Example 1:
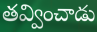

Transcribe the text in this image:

తవ్వించాడు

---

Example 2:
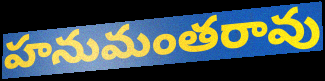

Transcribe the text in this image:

హనుమంతరావు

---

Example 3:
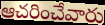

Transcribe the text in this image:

ఆచరించేవారు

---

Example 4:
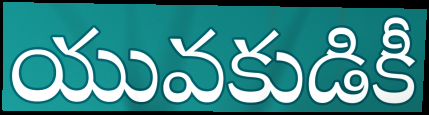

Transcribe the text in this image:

యువకుడికీ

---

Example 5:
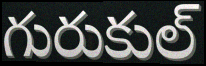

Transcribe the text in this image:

గురుకుల్